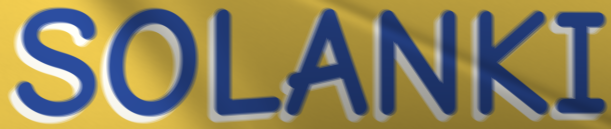
SOLANKI